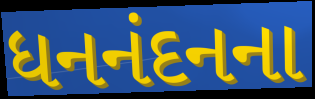
ધનનંદનના